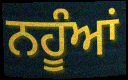
ਨਹੂੰਆਂ